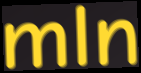
mln